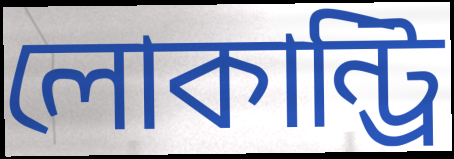
লোকান্ট্রি